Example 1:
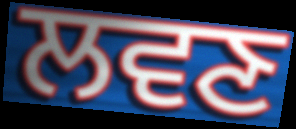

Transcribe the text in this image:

ਲਵਣ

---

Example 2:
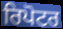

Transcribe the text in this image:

ਰਿਪੋਟਰ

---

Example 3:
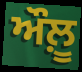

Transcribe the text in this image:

ਔਲ਼ੂ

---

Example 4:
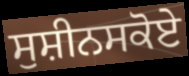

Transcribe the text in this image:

ਸੁਸ਼ੀਨਸਕੋਏ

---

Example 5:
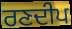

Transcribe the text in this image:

ਰਣਦੀਪ